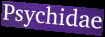
Psychidae